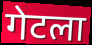
गेटला